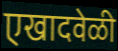
एखादवेळी